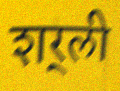
शर्ली